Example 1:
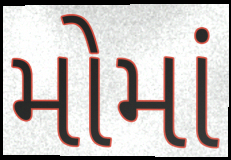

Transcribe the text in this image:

મોમાં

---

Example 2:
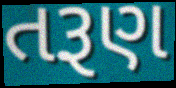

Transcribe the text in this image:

તરૂણ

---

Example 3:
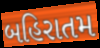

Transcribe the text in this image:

બહિરાતમ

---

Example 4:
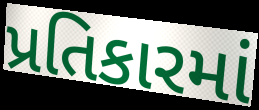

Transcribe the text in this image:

પ્રતિકારમાં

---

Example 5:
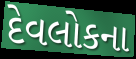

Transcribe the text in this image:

દેવલોકના